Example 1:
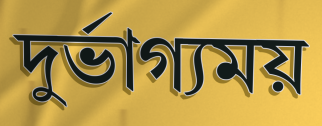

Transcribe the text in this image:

দুর্ভাগ্যময়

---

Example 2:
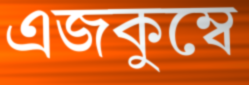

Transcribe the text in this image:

এজকুম্বে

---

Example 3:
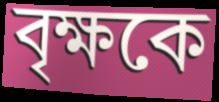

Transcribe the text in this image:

বৃক্ষকে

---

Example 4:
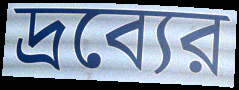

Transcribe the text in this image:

দ্রব্যের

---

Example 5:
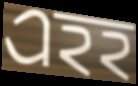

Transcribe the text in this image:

এহহ